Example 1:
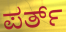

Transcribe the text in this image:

ಪರ್ತ್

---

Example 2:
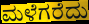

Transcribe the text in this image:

ಮಳೆಗರೆದು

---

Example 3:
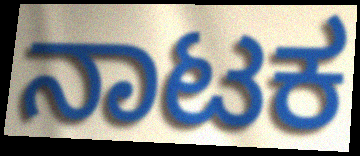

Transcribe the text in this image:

ನಾಟಕ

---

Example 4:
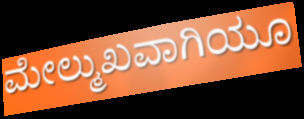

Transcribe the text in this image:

ಮೇಲ್ಮುಖವಾಗಿಯೂ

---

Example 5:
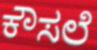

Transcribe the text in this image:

ಕೌಸಲೆ